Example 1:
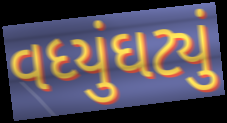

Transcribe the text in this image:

વધ્યુંઘટ્યું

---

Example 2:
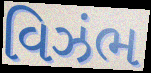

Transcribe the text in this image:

વિઝંભ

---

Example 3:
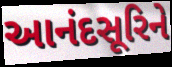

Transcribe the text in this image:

આનંદસૂરિને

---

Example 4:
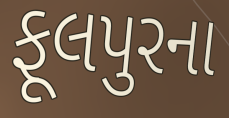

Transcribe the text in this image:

ફૂલપુરના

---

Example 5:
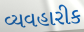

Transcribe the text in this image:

વ્યવહારીક